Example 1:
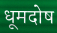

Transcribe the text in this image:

धूमदोष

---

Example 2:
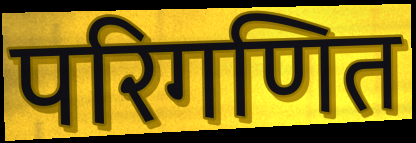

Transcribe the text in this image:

परिगणित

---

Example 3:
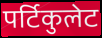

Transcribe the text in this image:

पर्टिकुलेट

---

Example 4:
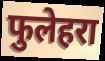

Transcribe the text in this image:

फुलेहरा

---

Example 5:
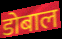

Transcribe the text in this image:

डोबाल